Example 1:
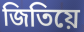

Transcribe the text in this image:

জিতিয়ে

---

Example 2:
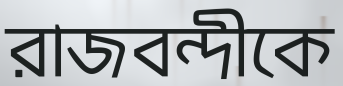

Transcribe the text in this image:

রাজবন্দীকে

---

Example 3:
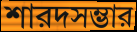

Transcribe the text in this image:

শারদসম্ভার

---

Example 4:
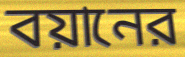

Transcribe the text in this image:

বয়ানের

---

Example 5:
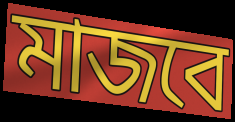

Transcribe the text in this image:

মাজবে